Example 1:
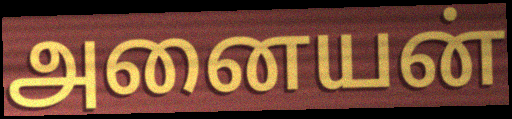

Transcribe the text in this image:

அனையன்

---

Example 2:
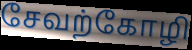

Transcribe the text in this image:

சேவற்கோழி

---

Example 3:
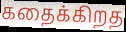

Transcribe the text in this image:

கதைக்கிறத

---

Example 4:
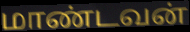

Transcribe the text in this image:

மாண்டவன்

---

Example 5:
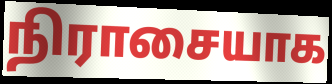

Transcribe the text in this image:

நிராசையாக